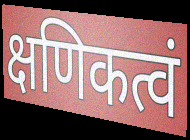
क्षणिकत्वं